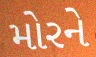
મોરને